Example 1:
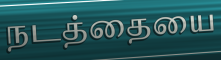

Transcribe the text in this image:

நடத்தையை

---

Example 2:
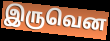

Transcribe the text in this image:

இருவென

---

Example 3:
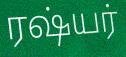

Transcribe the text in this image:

ரஷ்யர்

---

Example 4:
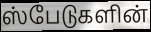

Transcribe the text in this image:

ஸ்பேடுகளின்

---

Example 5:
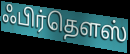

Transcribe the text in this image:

ஃபிர்தௌஸ்